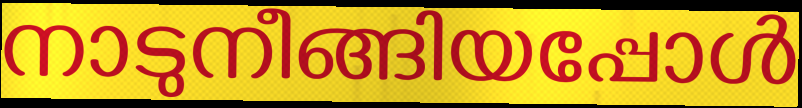
നാടുനീങ്ങിയപ്പോൾ